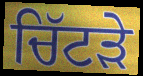
ਚਿੱਟੜੇ